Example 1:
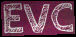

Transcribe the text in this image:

EVC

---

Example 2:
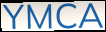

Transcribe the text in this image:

YMCA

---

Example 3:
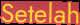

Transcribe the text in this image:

Setelah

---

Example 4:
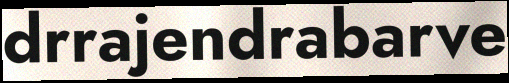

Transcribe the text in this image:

drrajendrabarve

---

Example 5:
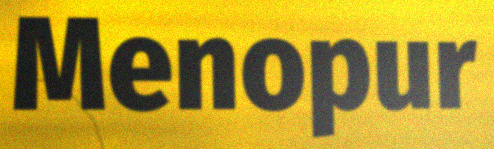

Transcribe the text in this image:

Menopur